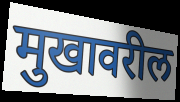
मुखावरील